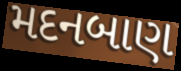
મદનબાણ